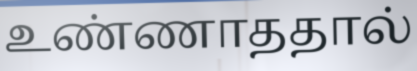
உண்ணாததால்